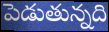
పెడుతున్నది